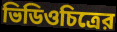
ভিডিওচিত্রের